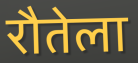
रौतेला